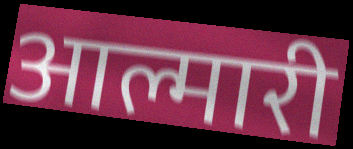
आल्मारी